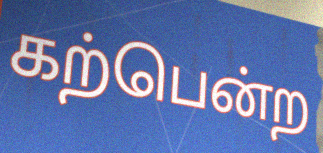
கற்பென்ற